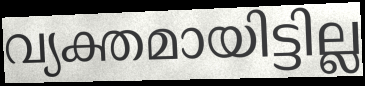
വ്യക്തമായിട്ടില്ല